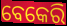
ବେକେରି